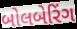
બોલબેરિંગ